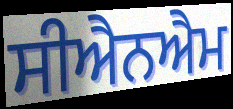
ਸੀਐਨਐਮ